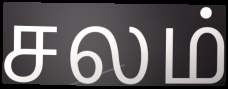
சலம்